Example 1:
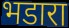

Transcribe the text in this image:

भडारा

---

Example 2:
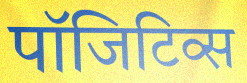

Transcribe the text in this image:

पॉजिटिव्स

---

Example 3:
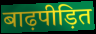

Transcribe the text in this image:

बाढ़पीड़ित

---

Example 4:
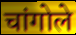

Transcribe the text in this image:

चांगोले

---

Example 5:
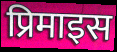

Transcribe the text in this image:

प्रिमाइस